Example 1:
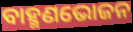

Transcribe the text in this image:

ବାହ୍ମଣଭୋଜନ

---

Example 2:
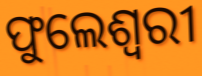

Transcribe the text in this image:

ଫୁଲେଶ୍ବରୀ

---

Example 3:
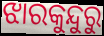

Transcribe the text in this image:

ଝାରକୁନ୍ଦୁରୁ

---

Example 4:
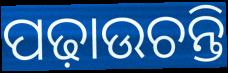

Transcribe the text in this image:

ପଢ଼ାଉଚନ୍ତି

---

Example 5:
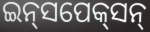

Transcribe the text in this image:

ଇନ୍‌ସପେକ୍‌ସନ୍